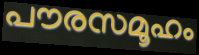
പൗരസമൂഹം